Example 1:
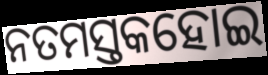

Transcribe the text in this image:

ନତମସ୍ତକହୋଇ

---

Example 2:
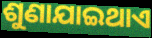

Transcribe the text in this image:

ଶୁଣାଯାଇଥାଏ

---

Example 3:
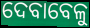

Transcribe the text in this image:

ଦେବାବେଳୁ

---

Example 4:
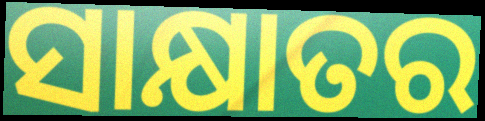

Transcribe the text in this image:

ସାକ୍ଷାତର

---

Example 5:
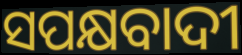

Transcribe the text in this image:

ସପକ୍ଷବାଦୀ